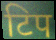
टिप